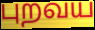
புறவய